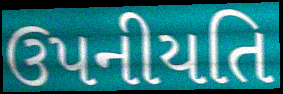
ઉપનીયતિ